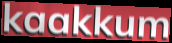
kaakkum